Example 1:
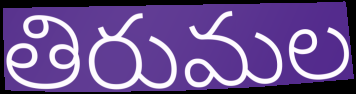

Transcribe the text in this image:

తిరుమల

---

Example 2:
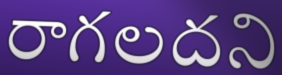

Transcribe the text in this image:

రాగలదని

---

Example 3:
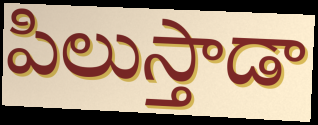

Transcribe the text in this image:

పిలుస్తాడా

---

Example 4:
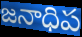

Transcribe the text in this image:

జనాధిప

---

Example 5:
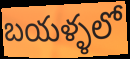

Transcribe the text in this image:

బయళ్ళలో